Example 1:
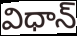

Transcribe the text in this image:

విధాన్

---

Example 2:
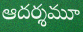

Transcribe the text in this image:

ఆదర్శమూ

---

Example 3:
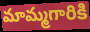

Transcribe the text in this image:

మామ్మగారికి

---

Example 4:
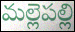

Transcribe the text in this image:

మల్లెపల్లి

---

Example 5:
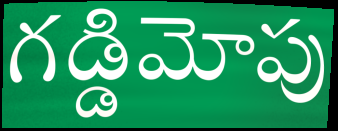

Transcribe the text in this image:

గడ్డిమోపు